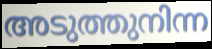
അടുത്തുനിന്ന